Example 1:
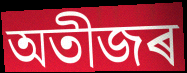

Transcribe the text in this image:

অতীজৰ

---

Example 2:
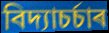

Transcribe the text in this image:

বিদ্যাচৰ্চাৰ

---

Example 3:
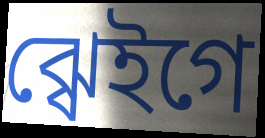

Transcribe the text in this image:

ঝ্ৱেইগে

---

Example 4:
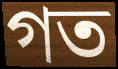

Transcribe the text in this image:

গত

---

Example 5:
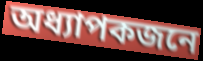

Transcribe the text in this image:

অধ্যাপকজনে